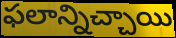
ఫలాన్నిచ్చాయి